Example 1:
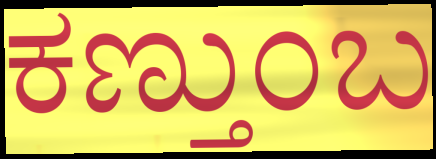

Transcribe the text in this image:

ಕಣ್ತುಂಬ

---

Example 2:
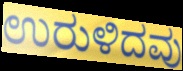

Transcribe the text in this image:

ಉರುಳಿದವು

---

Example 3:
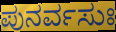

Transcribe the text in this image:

ಪುನರ್ವಸುಃ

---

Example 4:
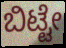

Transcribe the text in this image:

ಬಿಟ್ಟೇ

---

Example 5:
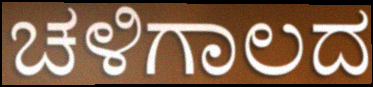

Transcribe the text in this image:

ಚಳಿಗಾಲದ